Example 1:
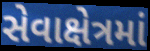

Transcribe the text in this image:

સેવાક્ષેત્રમાં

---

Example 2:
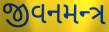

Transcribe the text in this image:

જીવનમન્ત્ર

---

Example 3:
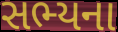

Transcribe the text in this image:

સભ્યના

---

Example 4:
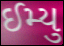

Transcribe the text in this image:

ઈમ્યુ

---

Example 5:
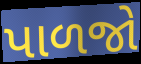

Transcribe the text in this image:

પાળજો